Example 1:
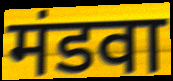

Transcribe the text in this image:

मंडवा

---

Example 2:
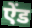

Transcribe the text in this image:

ऐंड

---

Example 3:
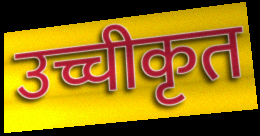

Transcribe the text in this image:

उच्चीकृत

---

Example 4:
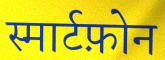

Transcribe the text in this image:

स्मार्टफ़ोन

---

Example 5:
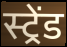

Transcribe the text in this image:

स्ट्रेंड